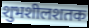
शुभशीलशतक